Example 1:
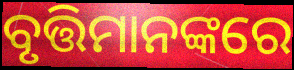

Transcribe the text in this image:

ବୃତ୍ତିମାନଙ୍କରେ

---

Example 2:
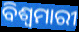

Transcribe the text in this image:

ବିଶ୍ୱମାରୀ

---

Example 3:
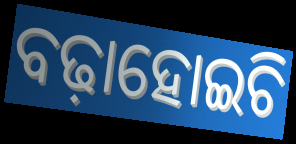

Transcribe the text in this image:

ବଢ଼ାହୋଇଚି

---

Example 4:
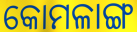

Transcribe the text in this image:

କୋମଳାଙ୍ଗ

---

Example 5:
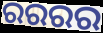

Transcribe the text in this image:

ରରରର